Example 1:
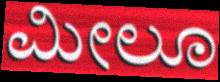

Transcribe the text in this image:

ಮೀಲೂ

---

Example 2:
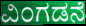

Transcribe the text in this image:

ವಿಂಗಡನೆ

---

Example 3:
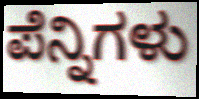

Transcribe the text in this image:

ಪೆನ್ನಿಗಳು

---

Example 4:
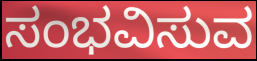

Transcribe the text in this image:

ಸಂಭವಿಸುವ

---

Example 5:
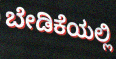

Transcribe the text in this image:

ಬೇಡಿಕೆಯಲ್ಲಿ